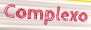
Complexo